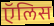
ऍलिस